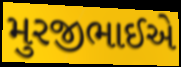
મુરજીભાઈએ